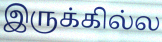
இருக்கில்ல